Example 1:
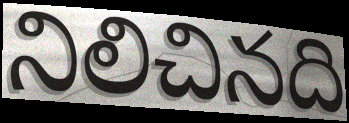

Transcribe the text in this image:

నిలిచినది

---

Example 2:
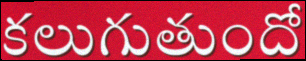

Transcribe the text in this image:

కలుగుతుందో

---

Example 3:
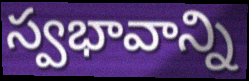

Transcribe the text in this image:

స్వభావాన్ని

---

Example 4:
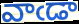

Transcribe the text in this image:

వాఁడా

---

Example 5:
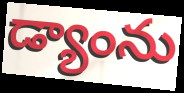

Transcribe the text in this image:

డ్యాంను